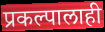
प्रकल्पालाही